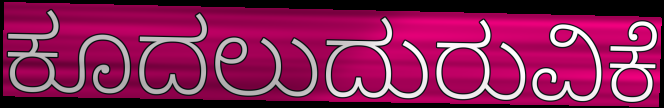
ಕೂದಲುದುರುವಿಕೆ